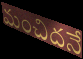
మంచిదనే